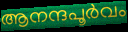
ആനന്ദപൂർവം